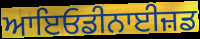
ਆਇਓਡੀਨਾਈਜ਼ਡ